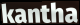
kantha